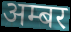
अम्बर